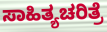
ಸಾಹಿತ್ಯಚರಿತ್ರೆ